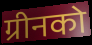
ग्रीनको